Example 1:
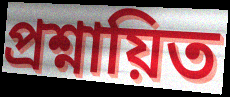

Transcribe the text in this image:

প্রশ্নায়িত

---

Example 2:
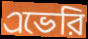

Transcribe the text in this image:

এভেরি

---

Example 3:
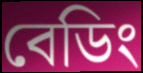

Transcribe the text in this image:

বেডিং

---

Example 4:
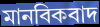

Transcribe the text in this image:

মানবিকবাদ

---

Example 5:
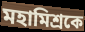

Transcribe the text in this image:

মহামিশ্রকে